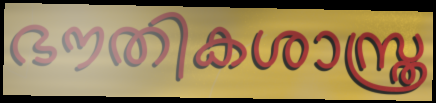
ഭൗതികശാസ്ത്ര